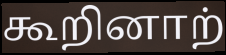
கூறினாற்